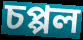
চপ্পল